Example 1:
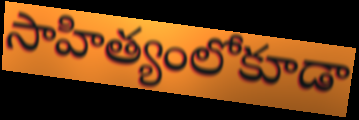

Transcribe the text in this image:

సాహిత్యంలోకూడా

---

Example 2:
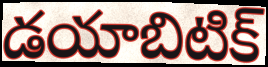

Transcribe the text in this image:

డయాబిటిక్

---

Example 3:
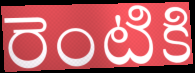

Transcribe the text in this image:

రెంటికి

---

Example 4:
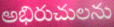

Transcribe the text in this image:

అభిరుచులను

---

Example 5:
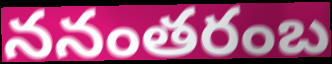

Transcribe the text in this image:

ననంతరంబ